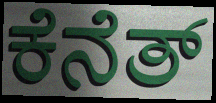
ಕೆನೆತ್